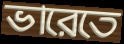
ভারেতে